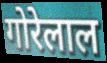
गोरेलाल